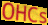
OHCs